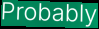
Probably